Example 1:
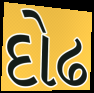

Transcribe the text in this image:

દોઢ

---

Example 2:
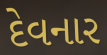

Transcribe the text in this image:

દેવનાર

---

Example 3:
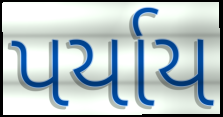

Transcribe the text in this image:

પર્યાય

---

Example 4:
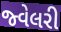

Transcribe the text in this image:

જ્વેલરી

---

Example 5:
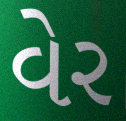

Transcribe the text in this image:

વેર